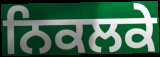
ਨਿਕਲਕੇ